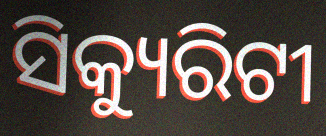
ସିକ୍ୟୁରିଟୀ